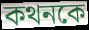
কথনকে